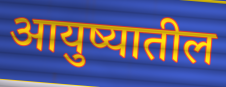
आयुष्यातील